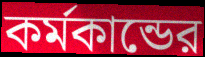
কর্মকান্ডের